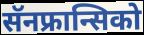
सॅनफ्रान्सिको